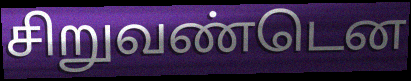
சிறுவண்டென